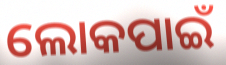
ଲୋକପାଇଁ